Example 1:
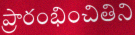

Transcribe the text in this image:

ప్రారంభించితిని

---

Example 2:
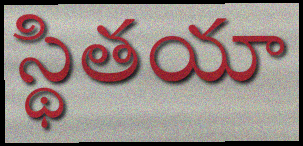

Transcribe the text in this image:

స్థితయా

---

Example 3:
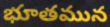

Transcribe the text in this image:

భూతమున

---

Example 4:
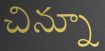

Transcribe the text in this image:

చిన్నూ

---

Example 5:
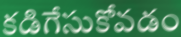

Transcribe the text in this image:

కడిగేసుకోవడం